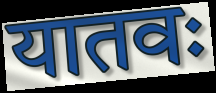
यातवः